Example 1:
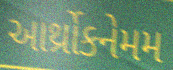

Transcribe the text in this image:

આર્થ્રોકનેમમ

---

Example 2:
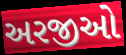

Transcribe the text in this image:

અરજીઓ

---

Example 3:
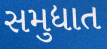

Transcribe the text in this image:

સમુદ્યાત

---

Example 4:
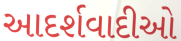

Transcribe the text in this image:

આદર્શવાદીઓ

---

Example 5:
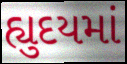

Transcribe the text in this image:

હ્યુદયમાં